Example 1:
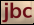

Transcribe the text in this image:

jbc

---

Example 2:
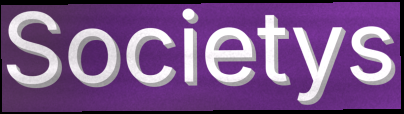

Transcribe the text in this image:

Societys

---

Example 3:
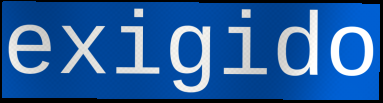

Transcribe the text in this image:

exigido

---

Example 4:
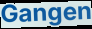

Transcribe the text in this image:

Gangen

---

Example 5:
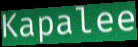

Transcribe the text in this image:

Kapalee